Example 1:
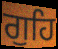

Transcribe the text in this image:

ਗੁਹਿ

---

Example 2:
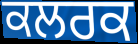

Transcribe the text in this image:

ਕਲਰਕ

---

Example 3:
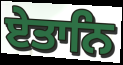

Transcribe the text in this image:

ਏਤਾਨਿ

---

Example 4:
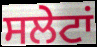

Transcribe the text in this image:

ਸਲੇਟਾਂ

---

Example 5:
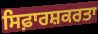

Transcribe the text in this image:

ਸਿਫ਼ਾਰਸ਼ਕਰਤਾ